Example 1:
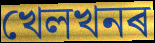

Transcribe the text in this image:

খেলখনৰ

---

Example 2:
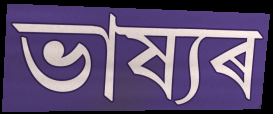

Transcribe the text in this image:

ভাষ্যৰ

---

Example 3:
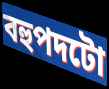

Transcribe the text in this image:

বহুপদটো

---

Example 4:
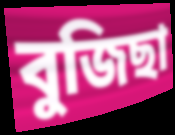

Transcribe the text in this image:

বুজিছা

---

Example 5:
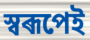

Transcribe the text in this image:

স্বৰূপেই